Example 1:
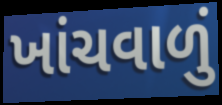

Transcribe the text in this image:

ખાંચવાળું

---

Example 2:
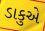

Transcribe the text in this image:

ડાકુએ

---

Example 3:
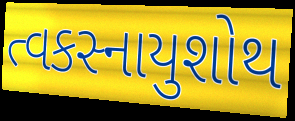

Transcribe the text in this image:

ત્વકસ્નાયુશોથ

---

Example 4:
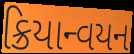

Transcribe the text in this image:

ક્રિયાન્વયન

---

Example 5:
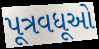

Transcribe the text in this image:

પૂત્રવધૂઓ